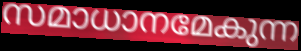
സമാധാനമേകുന്ന